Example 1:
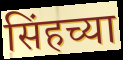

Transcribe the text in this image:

सिंहच्या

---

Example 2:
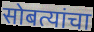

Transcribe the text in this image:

सोबत्यांचा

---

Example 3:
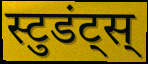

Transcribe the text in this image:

स्टुडंट्स्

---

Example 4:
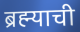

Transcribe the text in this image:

ब्रह्म्याची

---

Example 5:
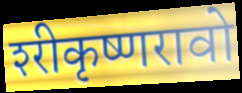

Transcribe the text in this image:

श्रीकृष्णरावो